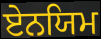
ਏਨਯਿਮ